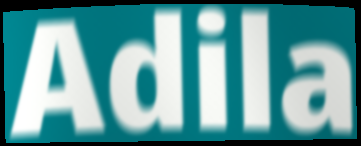
Adila